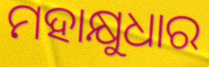
ମହାକ୍ଷୁଧାର